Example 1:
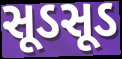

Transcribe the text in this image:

સૂડસૂડ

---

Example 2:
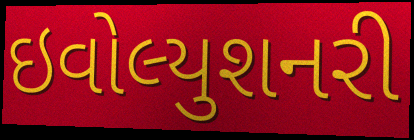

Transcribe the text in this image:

ઇવોલ્યુશનરી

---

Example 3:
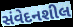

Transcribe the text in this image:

સંવેદનશીલ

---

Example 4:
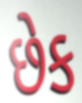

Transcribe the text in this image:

છેક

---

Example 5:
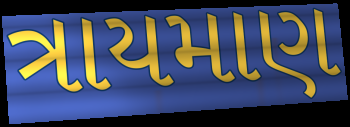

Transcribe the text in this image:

ત્રાયમાણ